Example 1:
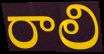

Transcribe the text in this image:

రాలి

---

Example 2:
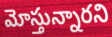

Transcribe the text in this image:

మోస్తున్నారని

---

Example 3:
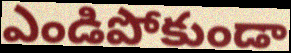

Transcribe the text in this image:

ఎండిపోకుండా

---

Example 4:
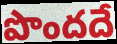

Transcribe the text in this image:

పొందదే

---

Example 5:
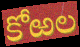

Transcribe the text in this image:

కోఱల